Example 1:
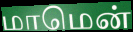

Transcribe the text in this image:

மாமென்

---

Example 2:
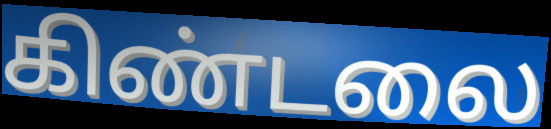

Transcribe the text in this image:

கிண்டலை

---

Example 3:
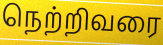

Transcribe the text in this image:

நெற்றிவரை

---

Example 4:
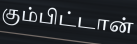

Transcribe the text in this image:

கும்பிட்டான்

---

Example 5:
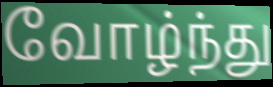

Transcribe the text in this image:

வோழ்ந்து